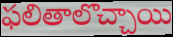
ఫలితాలొచ్చాయి